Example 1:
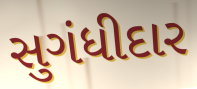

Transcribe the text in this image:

સુગંધીદાર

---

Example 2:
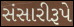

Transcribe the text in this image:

સંસારીરૂપે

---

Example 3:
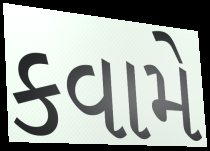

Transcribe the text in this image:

કવામે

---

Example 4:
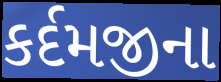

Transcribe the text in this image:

કર્દમજીના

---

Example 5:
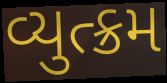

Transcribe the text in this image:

વ્યુત્ક્રમ